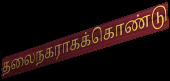
தலைநகராகக்கொண்டு